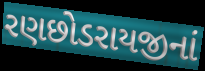
રણછોડરાયજીનાં